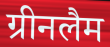
ग्रीनलैम